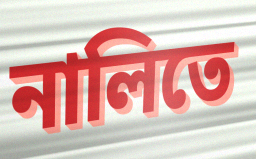
নালিতে